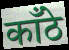
काँठे